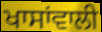
ਖਾਸਾਂਵਾਲੀ